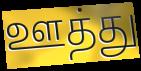
ஊத்து